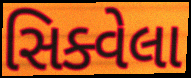
સિક્વેલા